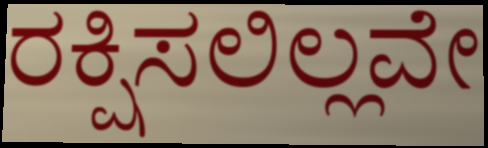
ರಕ್ಷಿಸಲಿಲ್ಲವೇ